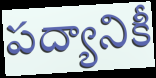
పద్యానికీ